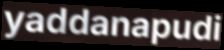
yaddanapudi